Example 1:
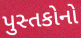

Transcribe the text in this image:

પુસ્તકોનો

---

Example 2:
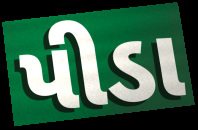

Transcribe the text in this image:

પીડા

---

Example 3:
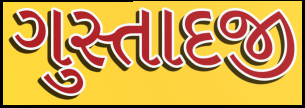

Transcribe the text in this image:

ગુસ્તાદજી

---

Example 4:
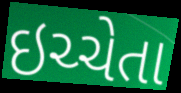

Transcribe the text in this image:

ઇચ્ચેતા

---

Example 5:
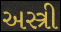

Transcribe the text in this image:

અસ્ત્રી